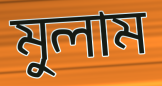
মুলাম